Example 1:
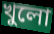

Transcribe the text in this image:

খুলো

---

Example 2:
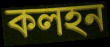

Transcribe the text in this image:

কলহন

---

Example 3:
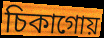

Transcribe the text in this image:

চিকাগোয়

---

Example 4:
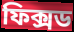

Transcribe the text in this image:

ফিক্সড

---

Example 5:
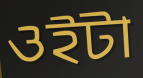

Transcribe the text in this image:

ওইটা